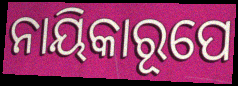
ନାୟିକାରୂପେ